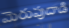
మెరుపుదాడి